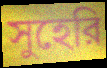
সুহেরি